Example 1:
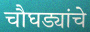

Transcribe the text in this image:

चौघड्यांचे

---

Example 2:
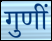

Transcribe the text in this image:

गुणीं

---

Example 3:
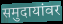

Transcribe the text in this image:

समुदायांवर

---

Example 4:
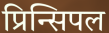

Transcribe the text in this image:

प्रिन्सिपल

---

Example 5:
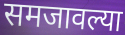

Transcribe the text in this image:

समजावल्या